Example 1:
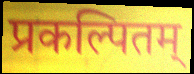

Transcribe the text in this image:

प्रकल्पितम्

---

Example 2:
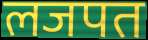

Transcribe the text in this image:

लजपत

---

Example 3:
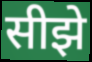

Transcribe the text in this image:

सीझे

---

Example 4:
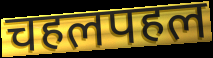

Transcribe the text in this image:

चहलपहल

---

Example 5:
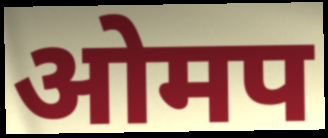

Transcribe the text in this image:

ओमप